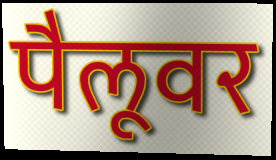
पैलूवर